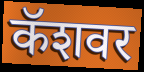
कॅशवर